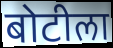
बोटीला